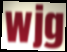
wjg